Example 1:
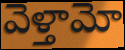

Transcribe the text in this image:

వెళ్తామో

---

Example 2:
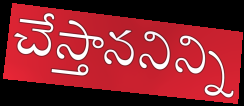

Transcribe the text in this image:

చేస్తాననిన్ని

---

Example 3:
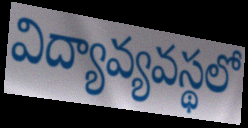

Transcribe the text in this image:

విద్యావ్యవస్థలో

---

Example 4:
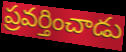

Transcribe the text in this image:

ప్రవర్తించాడు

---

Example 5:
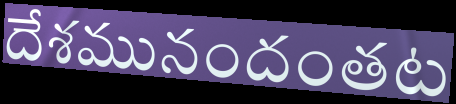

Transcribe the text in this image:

దేశమునందంతట